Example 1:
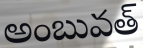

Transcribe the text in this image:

అంబువత్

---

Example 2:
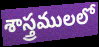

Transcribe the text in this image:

శాస్త్రములలో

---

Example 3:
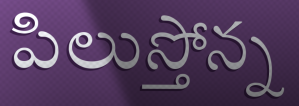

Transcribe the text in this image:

పిలుస్తోన్న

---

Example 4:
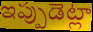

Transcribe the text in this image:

ఇప్పుడెట్లా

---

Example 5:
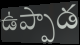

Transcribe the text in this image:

ఉప్పాడ